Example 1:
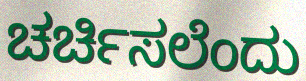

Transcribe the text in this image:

ಚರ್ಚಿಸಲೆಂದು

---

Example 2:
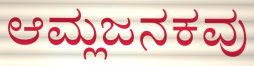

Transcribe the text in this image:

ಆಮ್ಲಜನಕವು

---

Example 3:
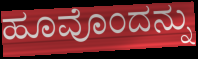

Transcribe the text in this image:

ಹೂವೊಂದನ್ನು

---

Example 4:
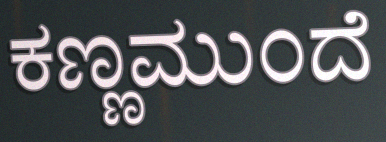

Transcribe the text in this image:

ಕಣ್ಣಮುಂದೆ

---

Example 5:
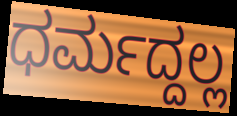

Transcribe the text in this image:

ಧರ್ಮದ್ದಲ್ಲ